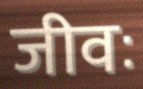
जीवः